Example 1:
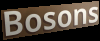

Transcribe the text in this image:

Bosons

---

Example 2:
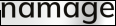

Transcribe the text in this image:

namage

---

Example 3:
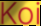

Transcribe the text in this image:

Koi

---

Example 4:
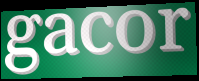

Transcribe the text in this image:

gacor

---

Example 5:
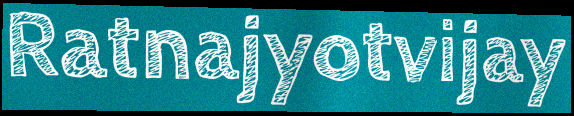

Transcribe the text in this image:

Ratnajyotvijay